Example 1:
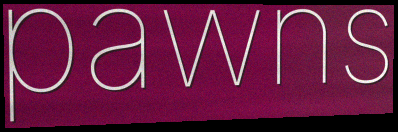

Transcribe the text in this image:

pawns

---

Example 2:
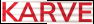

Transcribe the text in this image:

KARVE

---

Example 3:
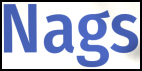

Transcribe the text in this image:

Nags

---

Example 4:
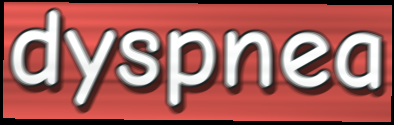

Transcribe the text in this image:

dyspnea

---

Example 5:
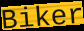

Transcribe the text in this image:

Biker